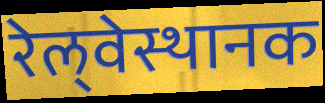
रेल्वेस्थानक